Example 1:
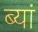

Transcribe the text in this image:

ब्यां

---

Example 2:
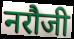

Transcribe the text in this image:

नरौजी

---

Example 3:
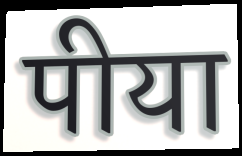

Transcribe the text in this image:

पीया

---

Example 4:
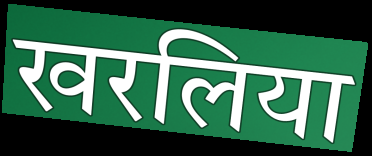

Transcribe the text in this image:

खरलिया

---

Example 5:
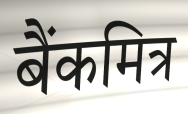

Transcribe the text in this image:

बैंकमित्र